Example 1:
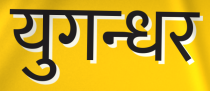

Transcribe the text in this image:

युगन्धर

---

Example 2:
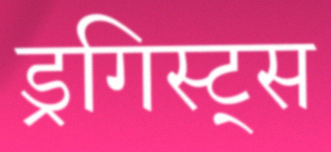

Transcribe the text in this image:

ड्रगिस्ट्स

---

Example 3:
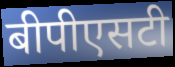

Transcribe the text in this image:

बीपीएसटी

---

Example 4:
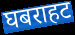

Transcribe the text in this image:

घबराहट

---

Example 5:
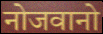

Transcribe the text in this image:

नोजवानो